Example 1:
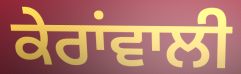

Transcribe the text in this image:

ਕੇਰਾਂਵਾਲੀ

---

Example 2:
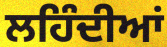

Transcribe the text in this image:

ਲਹਿੰਦੀਆਂ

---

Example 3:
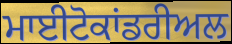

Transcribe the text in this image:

ਮਾਈਟੋਕਾਂਡਰੀਅਲ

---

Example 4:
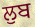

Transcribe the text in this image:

ਲੁਬ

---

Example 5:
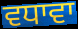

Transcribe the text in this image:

ਵਧਾਵਾ